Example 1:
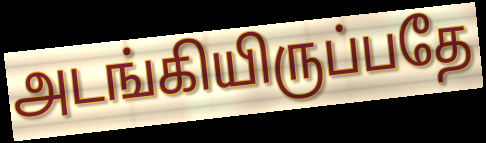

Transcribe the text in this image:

அடங்கியிருப்பதே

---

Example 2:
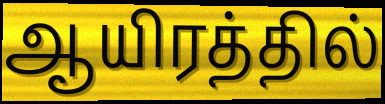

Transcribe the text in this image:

ஆயிரத்தில்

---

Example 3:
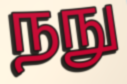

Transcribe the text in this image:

நநு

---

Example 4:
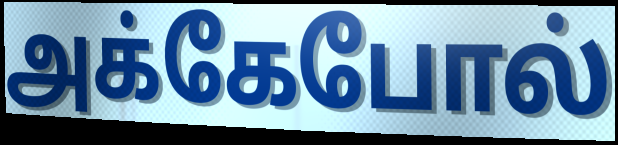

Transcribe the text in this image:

அக்கேபோல்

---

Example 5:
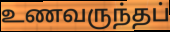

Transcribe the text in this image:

உணவருந்தப்